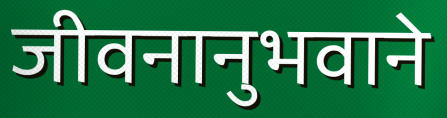
जीवनानुभवाने